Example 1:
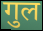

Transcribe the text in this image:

गुल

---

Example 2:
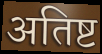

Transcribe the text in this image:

अतिष्ट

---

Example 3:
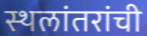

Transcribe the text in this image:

स्थलांतरांची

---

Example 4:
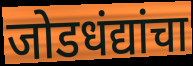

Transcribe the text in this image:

जोडधंद्यांचा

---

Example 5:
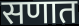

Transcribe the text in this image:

सणात